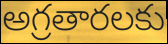
అగ్రతారలకు